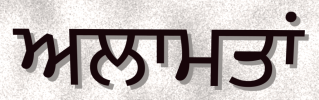
ਅਲਾਮਤਾਂ